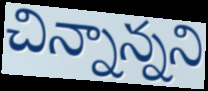
చిన్నాన్నని